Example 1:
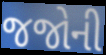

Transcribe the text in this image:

જજોની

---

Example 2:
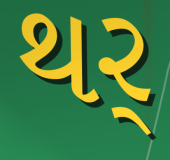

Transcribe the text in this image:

થર્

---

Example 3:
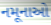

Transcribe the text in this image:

નમૂનાઓ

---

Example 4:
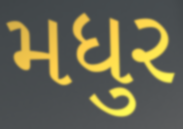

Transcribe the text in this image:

મધુર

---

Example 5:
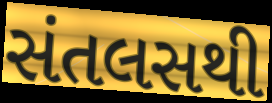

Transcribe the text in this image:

સંતલસથી